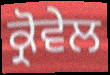
ਕ੍ਰੋਵੇਲ